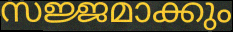
സജ്ജമാക്കും